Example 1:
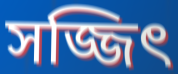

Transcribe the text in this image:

সজ্জিৎ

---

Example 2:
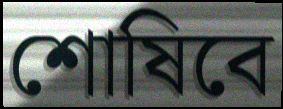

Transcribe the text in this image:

শোষিবে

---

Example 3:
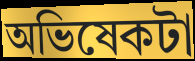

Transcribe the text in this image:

অভিষেকটা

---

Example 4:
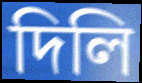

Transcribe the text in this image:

দিলি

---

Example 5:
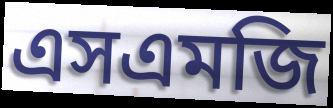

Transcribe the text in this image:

এসএমজি